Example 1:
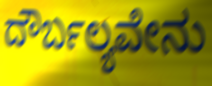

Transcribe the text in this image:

ದೌರ್ಬಲ್ಯವೇನು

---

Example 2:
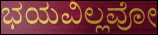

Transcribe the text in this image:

ಭಯವಿಲ್ಲವೋ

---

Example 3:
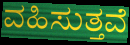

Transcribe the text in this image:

ವಹಿಸುತ್ತವೆ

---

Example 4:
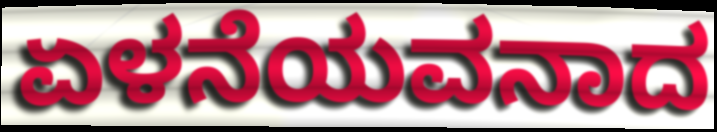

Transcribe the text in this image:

ಏಳನೆಯವನಾದ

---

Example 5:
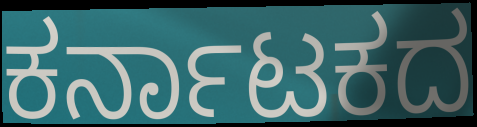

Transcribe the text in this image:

ಕರ್ನಾಟಕದ